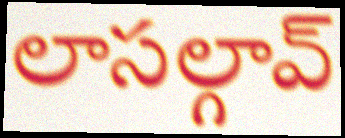
లాసల్గావ్